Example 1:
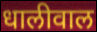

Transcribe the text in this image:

धालीवाल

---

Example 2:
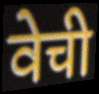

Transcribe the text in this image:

वेची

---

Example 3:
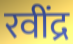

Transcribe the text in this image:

रवींद्र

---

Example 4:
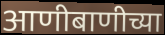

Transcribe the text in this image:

आणीबाणीच्या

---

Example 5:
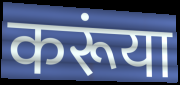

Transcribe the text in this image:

करूंया